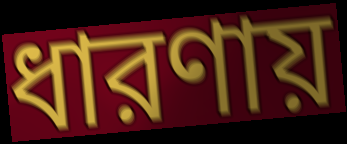
ধারণায়